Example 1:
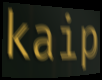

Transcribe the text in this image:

kaip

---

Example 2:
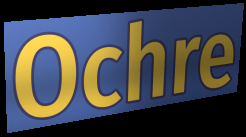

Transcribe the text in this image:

Ochre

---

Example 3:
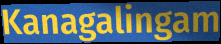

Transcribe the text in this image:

Kanagalingam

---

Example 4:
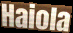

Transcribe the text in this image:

Haiola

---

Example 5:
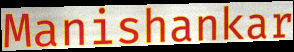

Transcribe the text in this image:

Manishankar